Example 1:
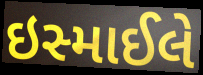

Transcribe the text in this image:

ઇસ્માઈલે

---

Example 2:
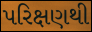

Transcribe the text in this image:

પરિક્ષણથી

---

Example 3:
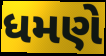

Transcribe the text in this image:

ધમણે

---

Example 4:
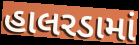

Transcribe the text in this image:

હાલરડામાં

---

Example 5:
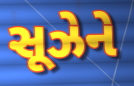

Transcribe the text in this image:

સૂઝેને